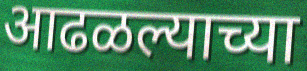
आढळल्याच्या